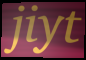
jiyt